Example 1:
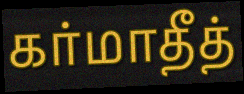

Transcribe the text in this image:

கர்மாதீத்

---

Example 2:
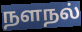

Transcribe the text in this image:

நளநல்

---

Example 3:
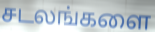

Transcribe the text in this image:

சடலங்களை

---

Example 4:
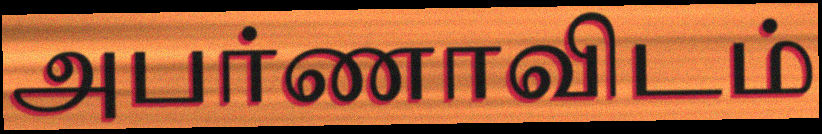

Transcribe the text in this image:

அபர்ணாவிடம்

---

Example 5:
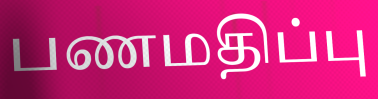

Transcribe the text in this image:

பணமதிப்பு